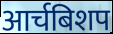
आर्चबिशप